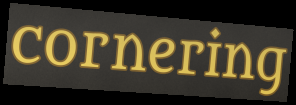
cornering